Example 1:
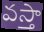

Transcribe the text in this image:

వస్తా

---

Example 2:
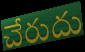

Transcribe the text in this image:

చేరుదు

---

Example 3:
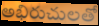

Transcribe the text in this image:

అభిరుచులతో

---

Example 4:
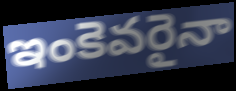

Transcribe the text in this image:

ఇంకెవరైనా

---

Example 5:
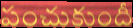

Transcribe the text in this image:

పంచుకుందీ